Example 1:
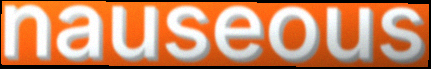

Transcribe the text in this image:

nauseous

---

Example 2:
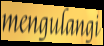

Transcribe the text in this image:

mengulangi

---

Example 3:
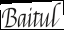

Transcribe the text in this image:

Baitul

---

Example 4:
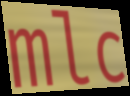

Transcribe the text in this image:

mlc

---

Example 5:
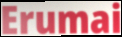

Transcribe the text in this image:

Erumai